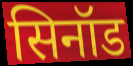
सिनॉड